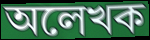
অলেখক